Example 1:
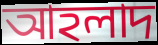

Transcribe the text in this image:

আহলাদ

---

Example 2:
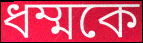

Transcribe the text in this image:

ধম্মকে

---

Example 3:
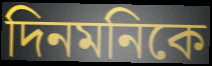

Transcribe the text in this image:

দিনমনিকে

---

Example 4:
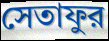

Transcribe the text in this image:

সেতাফুর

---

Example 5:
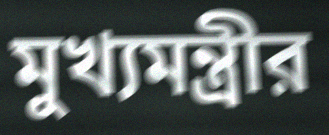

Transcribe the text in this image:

মুখ্যমন্ত্রীর